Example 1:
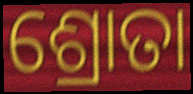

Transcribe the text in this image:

ଶ୍ରୋତା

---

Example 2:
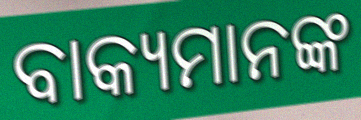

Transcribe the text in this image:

ବାକ୍ୟମାନଙ୍କ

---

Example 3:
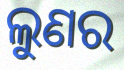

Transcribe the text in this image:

ଲୁଣର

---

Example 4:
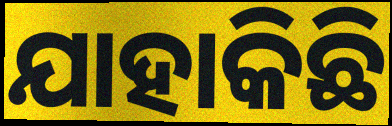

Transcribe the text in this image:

ଯାହାକିଛି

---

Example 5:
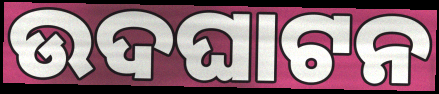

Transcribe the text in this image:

ଉଦଘାଟନ